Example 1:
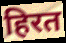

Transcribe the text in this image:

हिरत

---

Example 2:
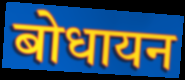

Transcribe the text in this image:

बोधायन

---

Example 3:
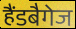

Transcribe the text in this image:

हैंडबैगेज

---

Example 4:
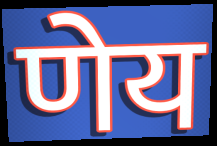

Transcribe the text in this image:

णेय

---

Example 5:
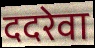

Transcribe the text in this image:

ददरेवा